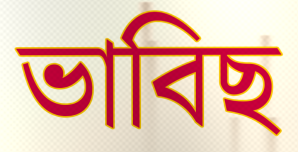
ভাবিছ